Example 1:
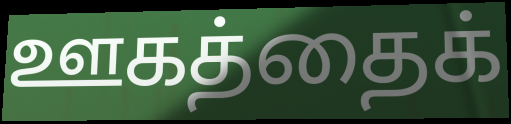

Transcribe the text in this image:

ஊகத்தைக்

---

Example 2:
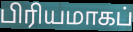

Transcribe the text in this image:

பிரியமாகப்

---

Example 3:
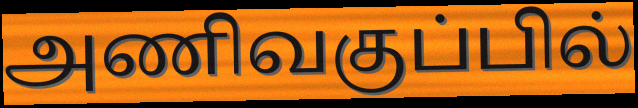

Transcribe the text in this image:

அணிவகுப்பில்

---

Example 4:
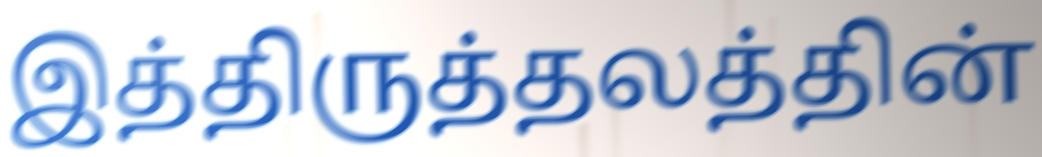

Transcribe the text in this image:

இத்திருத்தலத்தின்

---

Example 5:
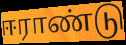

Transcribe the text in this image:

ஈராண்டு